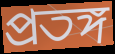
প্রতঙ্গ